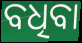
ବଧିବା